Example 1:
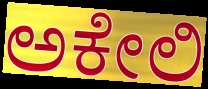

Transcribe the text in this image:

ಅಕೇಲಿ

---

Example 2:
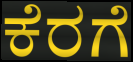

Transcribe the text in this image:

ಕೆರಗೆ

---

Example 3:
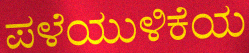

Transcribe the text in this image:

ಪಳೆಯುಳಿಕೆಯ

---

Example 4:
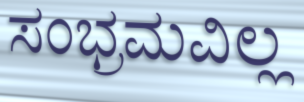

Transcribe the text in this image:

ಸಂಭ್ರಮವಿಲ್ಲ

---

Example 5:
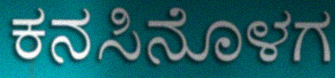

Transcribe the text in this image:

ಕನಸಿನೊಳಗ